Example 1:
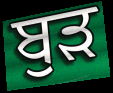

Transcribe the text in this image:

ਬੁੜ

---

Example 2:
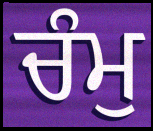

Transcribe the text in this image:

ਚੰਮੁ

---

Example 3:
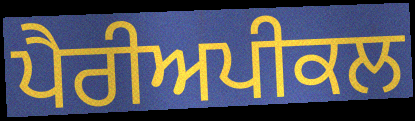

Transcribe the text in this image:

ਪੈਰੀਅਪੀਕਲ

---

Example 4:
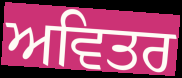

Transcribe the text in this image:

ਅਵਿਤਰ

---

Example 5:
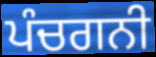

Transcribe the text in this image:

ਪੰਚਗਨੀ